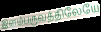
இளம்பருவத்திலேயே